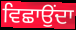
ਵਿਛਾਉਂਦਾ